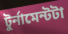
টুর্নামেন্টটা